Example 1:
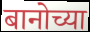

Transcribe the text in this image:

बानोच्या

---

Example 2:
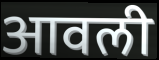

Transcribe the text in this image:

आवली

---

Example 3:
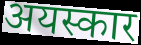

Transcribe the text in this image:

अयस्कार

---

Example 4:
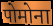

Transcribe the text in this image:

पोमोना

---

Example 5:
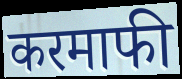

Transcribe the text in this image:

करमाफी